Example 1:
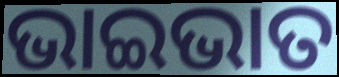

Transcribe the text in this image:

ଭାଇଭାତ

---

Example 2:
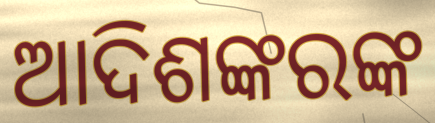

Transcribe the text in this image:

ଆଦିଶଙ୍କରଙ୍କ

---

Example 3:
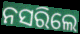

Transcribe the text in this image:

ନସରିଲେ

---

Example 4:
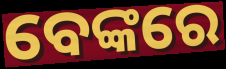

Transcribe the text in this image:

ବେଙ୍କରେ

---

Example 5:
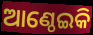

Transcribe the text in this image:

ଆଣ୍ଠେଇକି